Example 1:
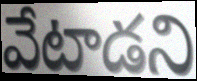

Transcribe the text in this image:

వేటాడని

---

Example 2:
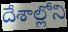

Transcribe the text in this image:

దేశాల్లోని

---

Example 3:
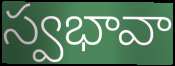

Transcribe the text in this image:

స్వభావా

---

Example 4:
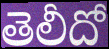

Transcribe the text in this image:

తెలీదో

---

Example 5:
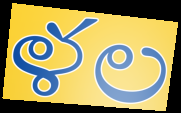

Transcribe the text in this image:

ళల